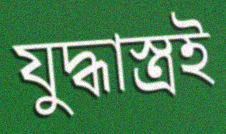
যুদ্ধাস্ত্রই